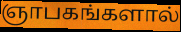
ஞாபகங்களால்